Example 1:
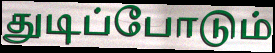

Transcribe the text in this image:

துடிப்போடும்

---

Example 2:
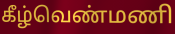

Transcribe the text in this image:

கீழ்வெண்மணி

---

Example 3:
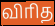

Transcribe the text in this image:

விரித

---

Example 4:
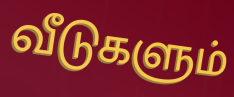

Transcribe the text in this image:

வீடுகளும்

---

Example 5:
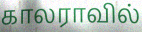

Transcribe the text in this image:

காலராவில்